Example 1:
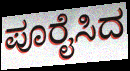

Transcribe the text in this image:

ಪೂರೈಸಿದ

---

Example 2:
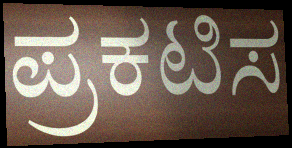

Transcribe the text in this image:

ಪ್ರಕಟಿಸ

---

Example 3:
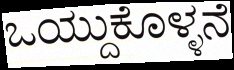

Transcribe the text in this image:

ಒಯ್ದುಕೊಳ್ಳನೆ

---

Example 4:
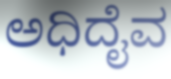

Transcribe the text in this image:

ಅಧಿದೈವ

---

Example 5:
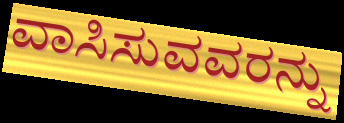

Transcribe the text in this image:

ವಾಸಿಸುವವರನ್ನು